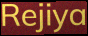
Rejiya